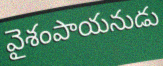
వైశంపాయనుడు